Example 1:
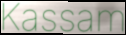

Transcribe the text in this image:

Kassam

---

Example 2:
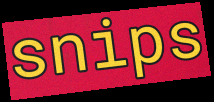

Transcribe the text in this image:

snips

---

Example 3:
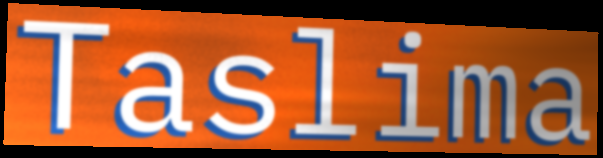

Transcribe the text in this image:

Taslima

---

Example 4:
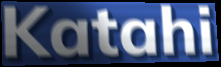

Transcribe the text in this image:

Katahi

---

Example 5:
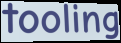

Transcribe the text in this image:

tooling